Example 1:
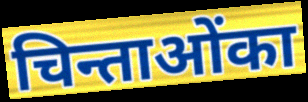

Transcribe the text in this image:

चिन्ताओंका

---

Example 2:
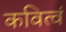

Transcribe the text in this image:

कवित्वं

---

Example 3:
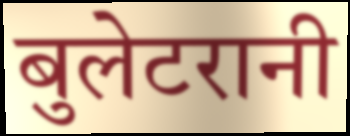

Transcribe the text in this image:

बुलेटरानी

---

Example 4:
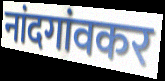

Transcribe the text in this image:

नांदगांवकर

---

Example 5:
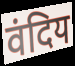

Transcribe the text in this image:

वंदिय